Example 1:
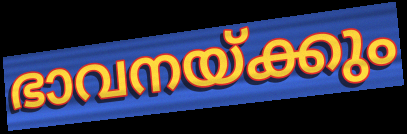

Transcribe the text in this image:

ഭാവനയ്ക്കും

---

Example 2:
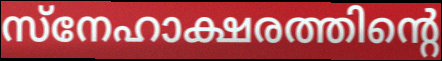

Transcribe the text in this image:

സ്നേഹാക്ഷരത്തിന്റെ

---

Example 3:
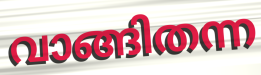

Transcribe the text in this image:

വാങ്ങിതന്ന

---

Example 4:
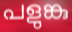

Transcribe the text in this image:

പളുങ്കു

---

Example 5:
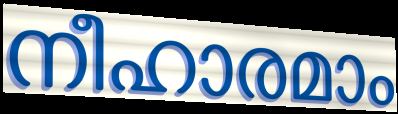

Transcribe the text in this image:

നീഹാരമാം